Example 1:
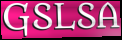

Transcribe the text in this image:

GSLSA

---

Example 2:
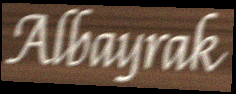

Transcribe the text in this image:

Albayrak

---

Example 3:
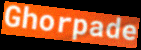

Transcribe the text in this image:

Ghorpade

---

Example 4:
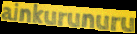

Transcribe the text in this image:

ainkurunuru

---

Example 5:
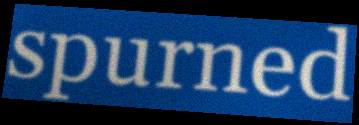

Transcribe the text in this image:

spurned